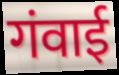
गंवाई